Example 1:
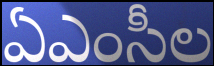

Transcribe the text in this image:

ఏఎంసీల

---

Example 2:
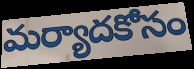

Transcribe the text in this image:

మర్యాదకోసం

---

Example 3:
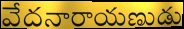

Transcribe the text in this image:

వేదనారాయణుడు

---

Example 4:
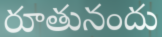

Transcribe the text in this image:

రూతునందు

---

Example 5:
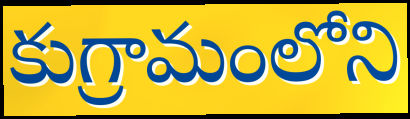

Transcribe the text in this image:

కుగ్రామంలోని